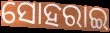
ସୋହରାଇ